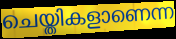
ചെയ്തികളാണെന്ന